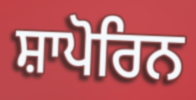
ਸ਼ਾਪੋਰਿਨ